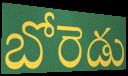
బోరెడు